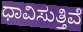
ಧಾವಿಸುತ್ತಿವೆ